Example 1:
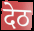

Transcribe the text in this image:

देठ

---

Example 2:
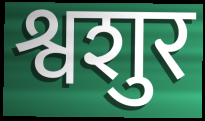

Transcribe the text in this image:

श्वशुर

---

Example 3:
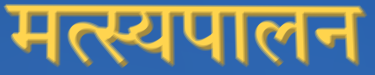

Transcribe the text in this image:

मत्स्यपालन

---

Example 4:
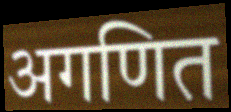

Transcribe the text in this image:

अगणित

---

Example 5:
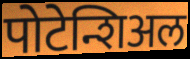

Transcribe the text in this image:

पोटेन्शिअल